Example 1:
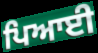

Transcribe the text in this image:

ਪਿਆਈ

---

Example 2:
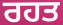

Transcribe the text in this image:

ਰਹਤ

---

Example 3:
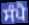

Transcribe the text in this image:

ਸੰਪੈ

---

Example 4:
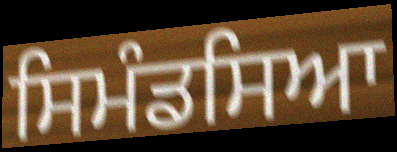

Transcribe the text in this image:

ਸਿਮੰਡਸਿਆ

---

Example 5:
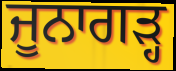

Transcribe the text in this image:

ਜੂਨਾਗੜ੍ਹ